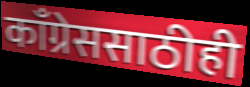
काँग्रेससाठीही